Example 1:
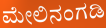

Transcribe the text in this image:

ಮೇಲಿನಂಗಡಿ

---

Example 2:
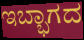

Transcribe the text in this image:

ಇಬ್ಭಾಗದ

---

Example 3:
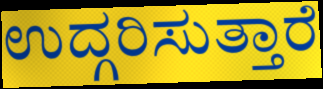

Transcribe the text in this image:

ಉದ್ಗರಿಸುತ್ತಾರೆ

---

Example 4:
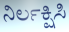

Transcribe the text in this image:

ನಿರ್ಲಕ್ಷಿಸಿ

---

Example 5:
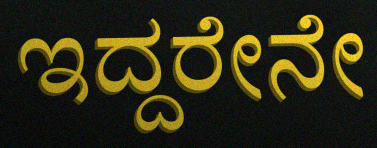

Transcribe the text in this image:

ಇದ್ದರೇನೇ